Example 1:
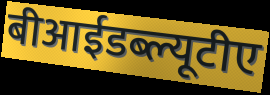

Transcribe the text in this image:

बीआईडब्ल्यूटीए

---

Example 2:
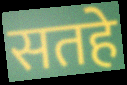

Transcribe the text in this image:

सतहे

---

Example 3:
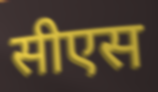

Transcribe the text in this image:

सीएस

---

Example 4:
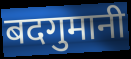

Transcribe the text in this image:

बदगुमानी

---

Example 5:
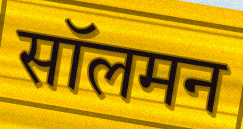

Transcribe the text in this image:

सॉलमन